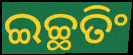
ଇଚ୍ଛତିଂ